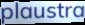
plaustra